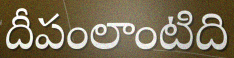
దీపంలాంటిది